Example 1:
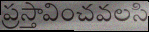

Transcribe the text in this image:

ప్రస్తావించవలసి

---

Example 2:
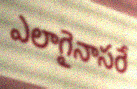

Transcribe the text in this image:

ఎలాగైనాసరే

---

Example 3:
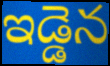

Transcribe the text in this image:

ఇడ్డెన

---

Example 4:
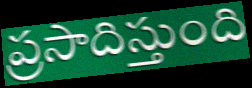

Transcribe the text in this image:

ప్రసాదిస్తుంది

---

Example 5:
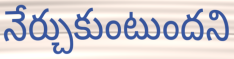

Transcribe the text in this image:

నేర్చుకుంటుందని